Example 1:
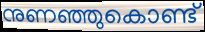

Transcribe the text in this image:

നുണഞ്ഞുകൊണ്ട്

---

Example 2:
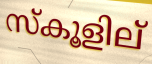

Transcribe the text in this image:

സ്കൂളില്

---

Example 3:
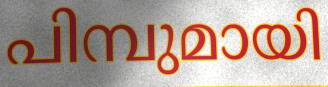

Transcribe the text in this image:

പിമ്പുമായി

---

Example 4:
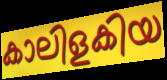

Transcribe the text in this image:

കാലിളകിയ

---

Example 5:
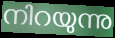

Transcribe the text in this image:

നിറയുന്നു